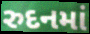
રુદનમાં